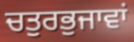
ਚਤੁਰਭੁਜਾਵਾਂ